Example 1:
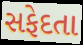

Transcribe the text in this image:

સફેદતા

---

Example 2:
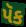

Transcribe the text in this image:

પૅક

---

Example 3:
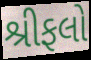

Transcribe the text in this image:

શ્રીફલો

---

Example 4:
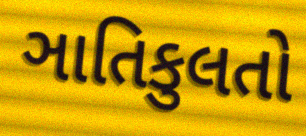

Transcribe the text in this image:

ઞાતિકુલતો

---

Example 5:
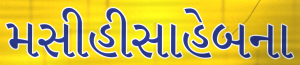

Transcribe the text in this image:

મસીહીસાહેબના